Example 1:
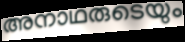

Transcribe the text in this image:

അനാഥരുടെയും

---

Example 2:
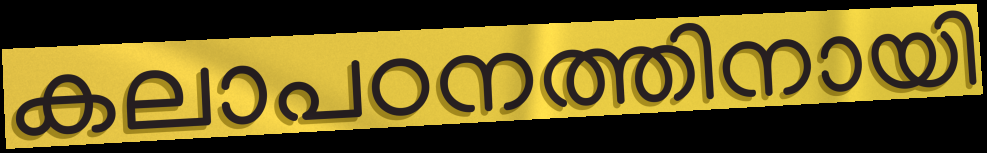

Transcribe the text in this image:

കലാപഠനത്തിനായി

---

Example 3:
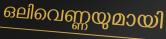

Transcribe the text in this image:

ഒലിവെണ്ണയുമായി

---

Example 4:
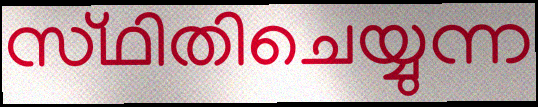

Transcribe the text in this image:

സ്‌ഥിതിചെയ്യുന്ന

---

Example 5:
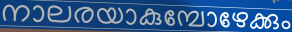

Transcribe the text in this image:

നാലരയാകുമ്പോഴേക്കും